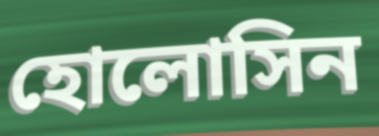
হোলোসিন